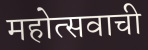
महोत्सवाची